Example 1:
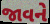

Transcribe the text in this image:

જાવને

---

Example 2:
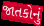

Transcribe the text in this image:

જાતકોનું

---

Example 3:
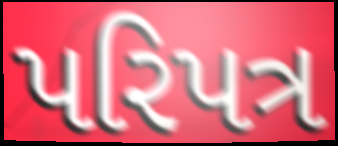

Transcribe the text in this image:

પરિપત્ર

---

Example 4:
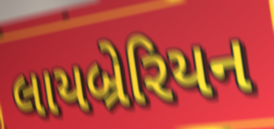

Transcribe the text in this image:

લાયબ્રેરિયન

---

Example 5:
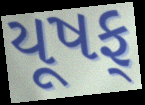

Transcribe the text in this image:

યૂષફ્